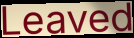
Leaved